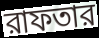
রাফতার